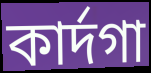
কাৰ্দগা